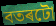
বতৰটো